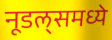
नूडल्समध्ये